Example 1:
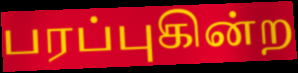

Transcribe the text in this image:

பரப்புகின்ற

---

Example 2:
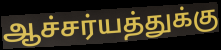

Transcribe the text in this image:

ஆச்சர்யத்துக்கு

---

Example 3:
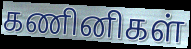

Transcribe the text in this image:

கணினிகள்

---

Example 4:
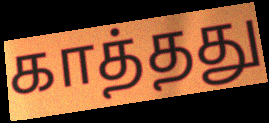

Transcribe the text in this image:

காத்தது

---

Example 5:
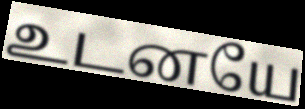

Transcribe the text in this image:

உடனயே